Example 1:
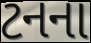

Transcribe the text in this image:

ટનના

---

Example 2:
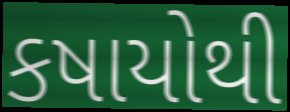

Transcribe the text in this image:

કષાયોથી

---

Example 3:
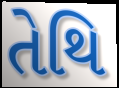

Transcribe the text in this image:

તેથિ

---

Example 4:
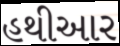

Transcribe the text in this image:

હથીઆર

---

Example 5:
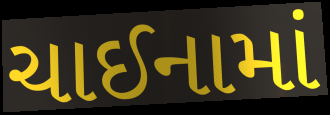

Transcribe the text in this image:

ચાઈનામાં